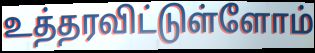
உத்தரவிட்டுள்ளோம்